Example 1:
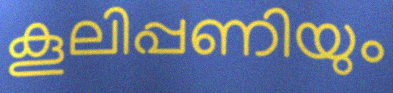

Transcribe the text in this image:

കൂലിപ്പണിയും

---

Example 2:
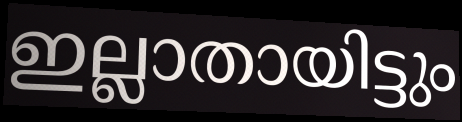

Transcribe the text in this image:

ഇല്ലാതായിട്ടും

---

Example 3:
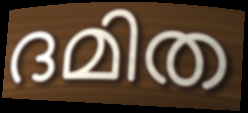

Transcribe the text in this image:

ദമിത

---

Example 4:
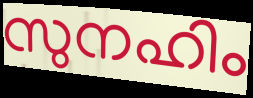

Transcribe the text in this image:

സുനഹിം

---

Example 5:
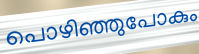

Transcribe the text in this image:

പൊഴിഞ്ഞുപോകും